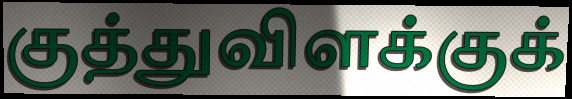
குத்துவிளக்குக்